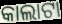
କାଲାଟା